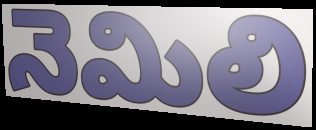
నెమిలి